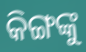
କିଙ୍ଗଙ୍କୁ